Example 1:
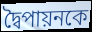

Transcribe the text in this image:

দ্বৈপায়নকে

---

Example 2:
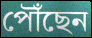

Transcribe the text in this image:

পৌঁছেন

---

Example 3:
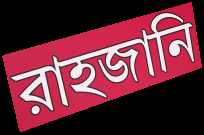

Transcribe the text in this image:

রাহজানি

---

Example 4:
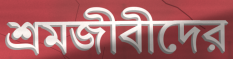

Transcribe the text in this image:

শ্রমজীবীদের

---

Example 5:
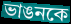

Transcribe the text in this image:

ভাঙনকে